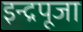
इन्द्रपूजा